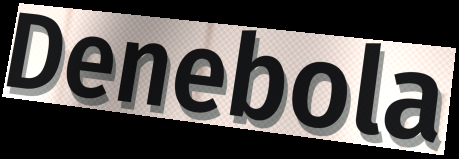
Denebola